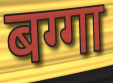
बग्गा